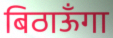
बिठाऊँगा